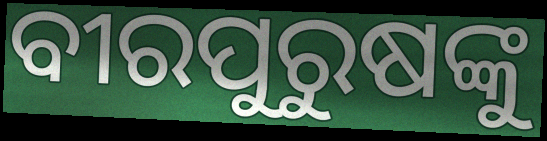
ବୀରପୁରୁଷଙ୍କୁ